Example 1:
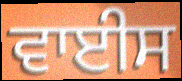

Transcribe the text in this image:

ਵਾਈਸ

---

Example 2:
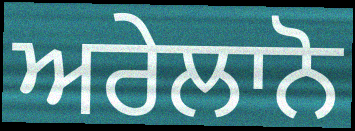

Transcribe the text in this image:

ਅਰੇਲਾਨੋ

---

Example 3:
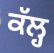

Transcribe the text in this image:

ਕੱਲ੍ਹ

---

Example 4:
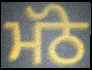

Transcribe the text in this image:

ਮੱਠੇ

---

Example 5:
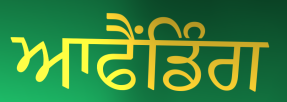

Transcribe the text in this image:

ਆਫੈਂਡਿੰਗ